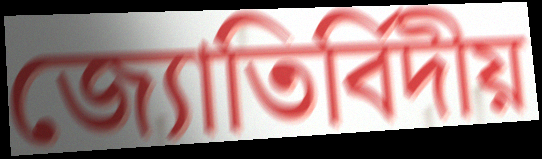
জ্যোতির্বিদীয়